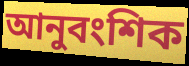
আনুবংশিক